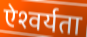
ऐश्वर्यता